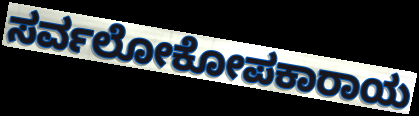
ಸರ್ವಲೋಕೋಪಕಾರಾಯ